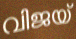
വിജയ്